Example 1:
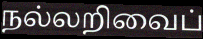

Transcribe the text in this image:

நல்லறிவைப்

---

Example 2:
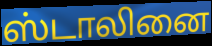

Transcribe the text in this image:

ஸ்டாலினை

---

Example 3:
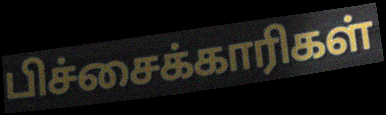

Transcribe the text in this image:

பிச்சைக்காரிகள்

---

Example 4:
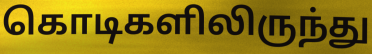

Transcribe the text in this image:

கொடிகளிலிருந்து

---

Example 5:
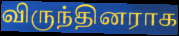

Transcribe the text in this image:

விருந்தினராக